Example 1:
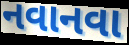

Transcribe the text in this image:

નવાનવા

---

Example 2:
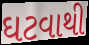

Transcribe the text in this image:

ઘટવાથી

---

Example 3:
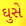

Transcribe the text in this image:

ઘુસે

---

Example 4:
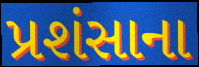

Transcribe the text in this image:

પ્રશંસાના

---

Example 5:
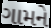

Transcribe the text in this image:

ગામને